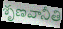
శృణవానీతి